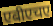
एबीएचए